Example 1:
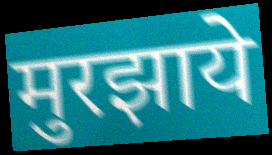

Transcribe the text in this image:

मुरझाये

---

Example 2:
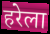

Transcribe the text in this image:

हरेला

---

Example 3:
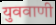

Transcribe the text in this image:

युववाणी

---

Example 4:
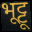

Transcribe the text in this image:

भूट्टू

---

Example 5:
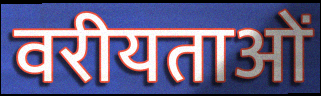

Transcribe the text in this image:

वरीयताओं